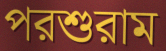
পরশুরাম